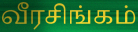
வீரசிங்கம்